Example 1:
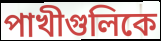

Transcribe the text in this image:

পাখীগুলিকে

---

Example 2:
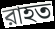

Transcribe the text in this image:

রাহত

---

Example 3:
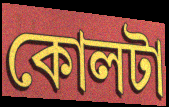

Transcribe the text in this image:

কোলটা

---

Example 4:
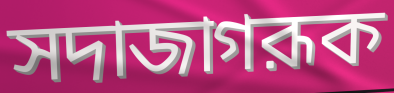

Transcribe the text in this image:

সদাজাগরূক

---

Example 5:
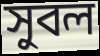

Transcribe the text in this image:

সুবল